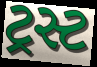
ટ્રસ્ટ